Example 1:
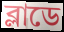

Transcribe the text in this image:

ব্লাডে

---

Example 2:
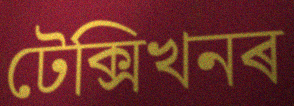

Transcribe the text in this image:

টেক্সিখনৰ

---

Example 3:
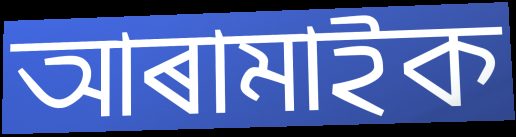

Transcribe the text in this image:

আৰামাইক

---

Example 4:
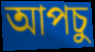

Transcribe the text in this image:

আপচু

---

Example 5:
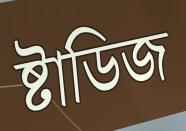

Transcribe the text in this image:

ষ্টাডিজ